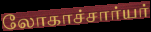
லோகாச்சார்யர்